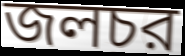
জলচর